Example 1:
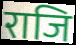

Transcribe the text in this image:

राजि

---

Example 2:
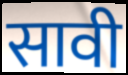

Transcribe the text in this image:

सावी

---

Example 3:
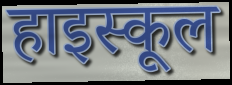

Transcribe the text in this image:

हाइस्कूल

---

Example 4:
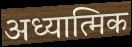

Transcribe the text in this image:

अध्यात्मिक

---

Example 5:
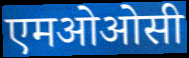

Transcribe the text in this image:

एमओओसी